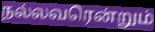
நல்லவரென்றும்